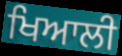
ਖਿਆਲੀ